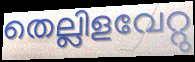
തെല്ലിളവേറ്റു